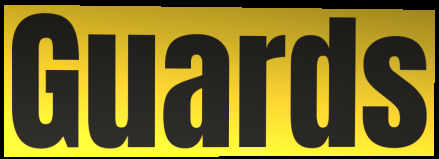
Guards